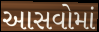
આસવોમાં